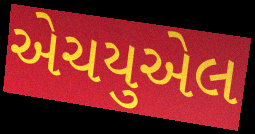
એચયુએલ